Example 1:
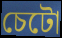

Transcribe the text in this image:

চেটো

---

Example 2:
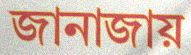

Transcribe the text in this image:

জানাজায়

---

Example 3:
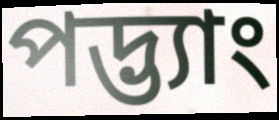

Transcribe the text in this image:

পদ্ভ্যাং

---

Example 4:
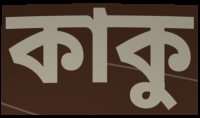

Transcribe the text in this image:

কাকু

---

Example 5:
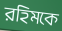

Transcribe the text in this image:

রহিমকে